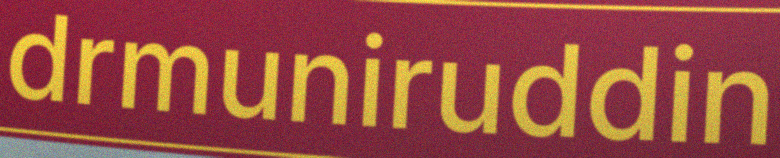
drmuniruddin